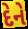
દેને